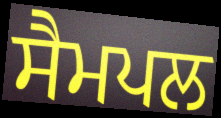
ਸੈਮਪਲ